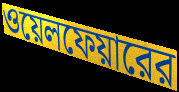
ওয়েলফেয়ারের